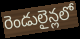
రెండులైన్లలో